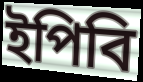
ইপিবি